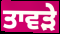
ਤਾਵੜੇ